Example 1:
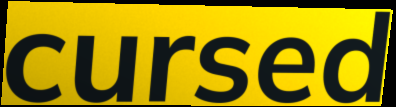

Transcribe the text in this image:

cursed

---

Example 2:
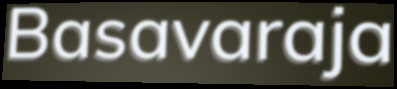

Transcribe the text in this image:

Basavaraja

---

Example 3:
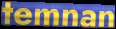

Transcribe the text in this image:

temnan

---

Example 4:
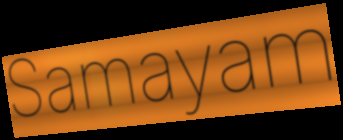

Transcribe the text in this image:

Samayam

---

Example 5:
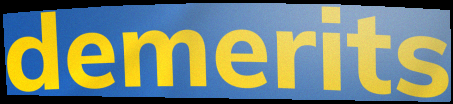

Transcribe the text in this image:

demerits